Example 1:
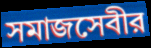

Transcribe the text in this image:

সমাজসেবীর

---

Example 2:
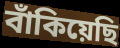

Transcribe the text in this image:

বাঁকিয়েছি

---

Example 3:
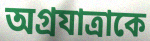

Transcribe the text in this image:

অগ্রযাত্রাকে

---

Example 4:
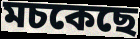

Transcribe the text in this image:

মচকেছে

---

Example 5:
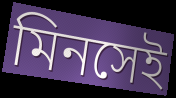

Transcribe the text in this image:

মিনসেই